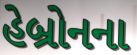
હેબ્રોનના